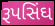
રૂપસિંઘ